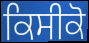
ਕਿਸੀਕੋ